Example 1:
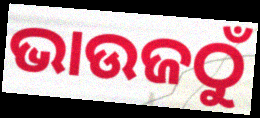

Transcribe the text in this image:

ଭାଉଜଠୁଁ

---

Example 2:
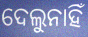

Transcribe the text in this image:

ଦେଲୁନାହିଁ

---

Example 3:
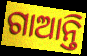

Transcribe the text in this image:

ଗାଆନ୍ତି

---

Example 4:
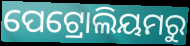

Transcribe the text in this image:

ପେଟ୍ରୋଲିୟମରୁ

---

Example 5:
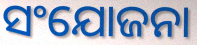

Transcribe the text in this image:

ସଂଯୋଜନା